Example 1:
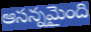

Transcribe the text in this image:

ఆసన్నమైంది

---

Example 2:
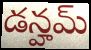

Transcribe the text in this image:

డన్హమ్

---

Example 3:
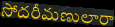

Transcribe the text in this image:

సోదరీమణులారా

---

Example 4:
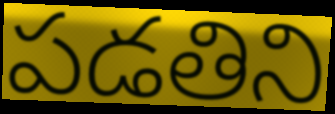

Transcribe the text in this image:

పడతిని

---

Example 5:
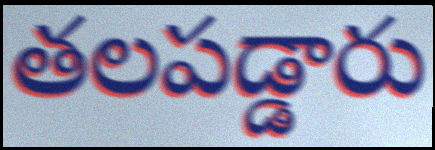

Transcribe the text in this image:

తలపడ్డారు